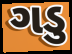
ગડુ